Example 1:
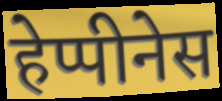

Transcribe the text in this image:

हेप्पीनेस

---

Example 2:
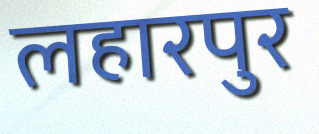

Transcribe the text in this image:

लहारपुर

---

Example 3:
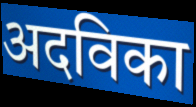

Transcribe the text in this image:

अदविका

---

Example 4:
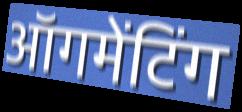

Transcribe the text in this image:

ऑगमेंटिंग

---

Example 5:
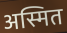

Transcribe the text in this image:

अस्मित